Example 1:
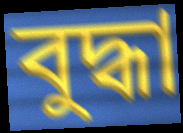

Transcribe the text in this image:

বুদ্ধা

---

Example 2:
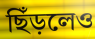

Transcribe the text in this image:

ছিঁড়লেও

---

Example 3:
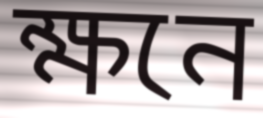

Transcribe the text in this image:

ক্ষনে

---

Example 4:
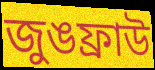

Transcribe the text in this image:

জুঙফ্রাউ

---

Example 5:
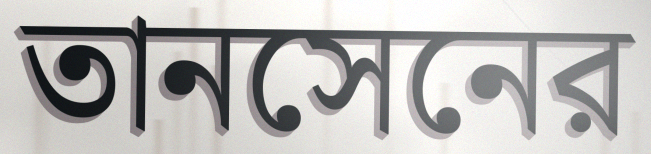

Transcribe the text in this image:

তানসেনের